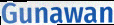
Gunawan